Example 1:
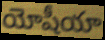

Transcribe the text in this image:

యోషీయా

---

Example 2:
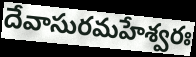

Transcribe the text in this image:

దేవాసురమహేశ్వరః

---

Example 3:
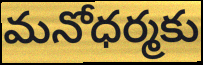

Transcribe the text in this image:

మనోధర్మకు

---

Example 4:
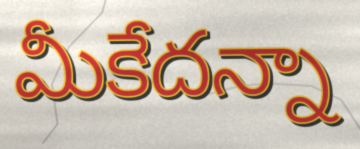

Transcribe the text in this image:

మీకేదన్నా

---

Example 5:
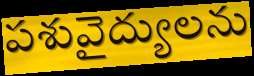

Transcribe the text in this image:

పశువైద్యులను